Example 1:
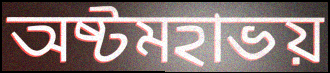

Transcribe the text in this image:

অষ্টমহাভয়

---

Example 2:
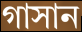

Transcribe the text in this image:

গাসান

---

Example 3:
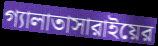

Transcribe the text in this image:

গ্যালাতাসারাইয়ের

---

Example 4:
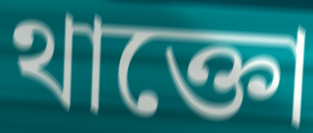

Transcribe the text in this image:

থাক্তো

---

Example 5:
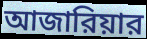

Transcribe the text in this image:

আজারিয়ার